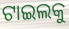
ଟାଇଲକୁ